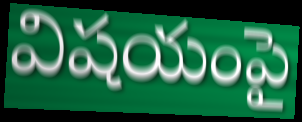
విషయంపై